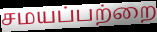
சமயப்பற்றை